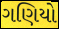
ગણિયો